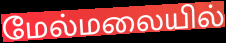
மேல்மலையில்